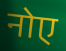
नोए